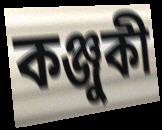
কঞ্জুকী